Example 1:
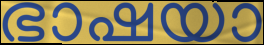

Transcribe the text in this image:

ഭാഷയാ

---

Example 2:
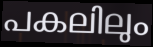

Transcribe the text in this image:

പകലിലും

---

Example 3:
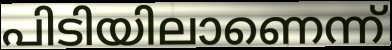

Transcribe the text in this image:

പിടിയിലാണെന്ന്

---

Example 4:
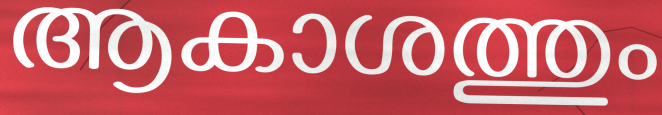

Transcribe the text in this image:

ആകാശത്തും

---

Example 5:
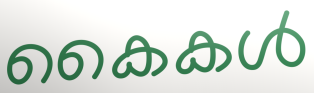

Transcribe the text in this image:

കൈകൾ